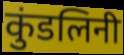
कुंडलिनी